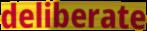
deliberate